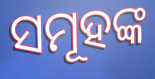
ସମୂହଙ୍କ